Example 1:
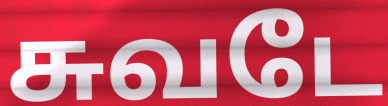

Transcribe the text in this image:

சுவடே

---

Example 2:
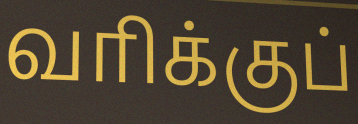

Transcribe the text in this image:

வரிக்குப்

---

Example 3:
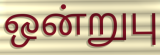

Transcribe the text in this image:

ஒன்றுபு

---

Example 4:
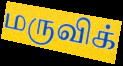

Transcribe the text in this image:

மருவிக்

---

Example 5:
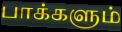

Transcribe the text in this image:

பாக்களும்